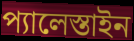
প্যালেস্তাইন